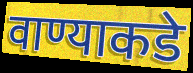
वाण्याकडे